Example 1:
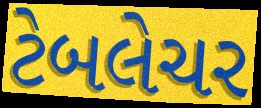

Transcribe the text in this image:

ટેબલેચર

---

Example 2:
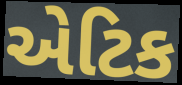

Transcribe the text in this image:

એટિક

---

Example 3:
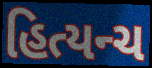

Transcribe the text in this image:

હિત્યન્ચ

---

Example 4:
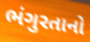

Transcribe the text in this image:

ભંગુરતાનો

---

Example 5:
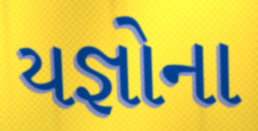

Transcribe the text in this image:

યજ્ઞોના